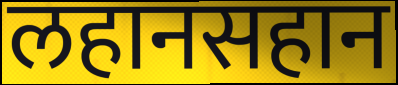
लहानसहान